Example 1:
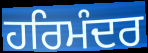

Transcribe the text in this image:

ਹਰਿਮੰਦਰ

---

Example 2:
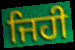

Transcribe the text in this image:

ਜਿਹੀ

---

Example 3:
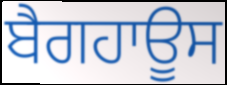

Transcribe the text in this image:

ਬੈਗਹਾਊਸ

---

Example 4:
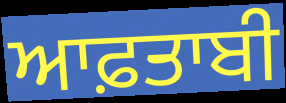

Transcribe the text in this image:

ਆਫ਼ਤਾਬੀ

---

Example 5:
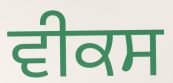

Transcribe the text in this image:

ਵੀਕਸ